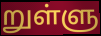
றுள்ளு